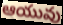
ఆయువు